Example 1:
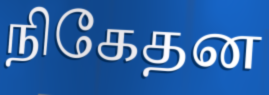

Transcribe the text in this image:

நிகேதன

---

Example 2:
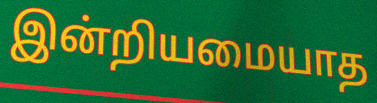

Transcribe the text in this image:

இன்றியமையாத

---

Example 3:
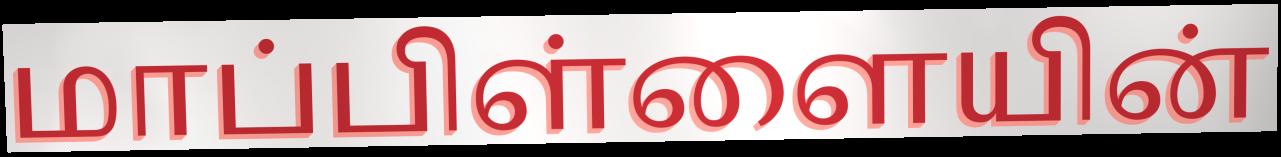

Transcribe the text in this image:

மாப்பிள்ளையின்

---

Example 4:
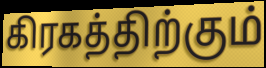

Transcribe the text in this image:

கிரகத்திற்கும்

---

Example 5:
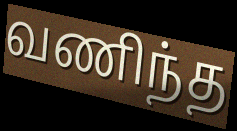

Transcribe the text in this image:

வணிந்த